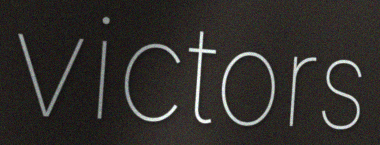
victors